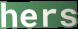
hers